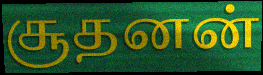
சூதனன்